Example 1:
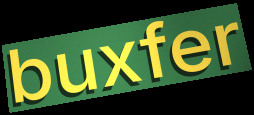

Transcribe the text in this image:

buxfer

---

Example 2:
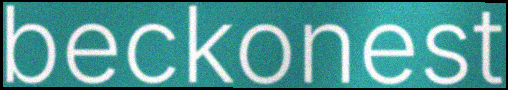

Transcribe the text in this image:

beckonest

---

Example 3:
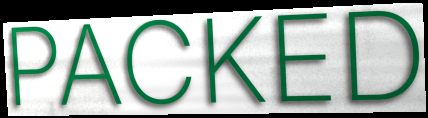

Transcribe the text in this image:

PACKED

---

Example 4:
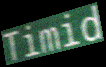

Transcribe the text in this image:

Timid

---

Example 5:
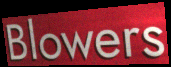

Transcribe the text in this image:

Blowers